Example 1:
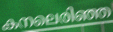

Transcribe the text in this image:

കനലെരിഞ്ഞ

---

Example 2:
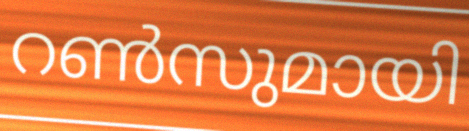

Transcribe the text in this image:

റൺസുമായി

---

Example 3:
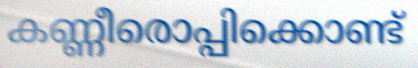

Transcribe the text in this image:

കണ്ണീരൊപ്പിക്കൊണ്ട്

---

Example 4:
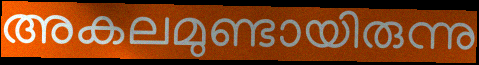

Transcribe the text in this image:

അകലമുണ്ടായിരുന്നു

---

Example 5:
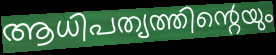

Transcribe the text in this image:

ആധിപത്യത്തിന്റെയും